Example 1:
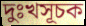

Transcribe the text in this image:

দুঃখসূচক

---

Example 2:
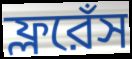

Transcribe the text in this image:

ফ্লরেঁস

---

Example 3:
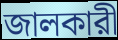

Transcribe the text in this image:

জালকারী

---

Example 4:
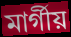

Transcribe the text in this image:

মার্গীয়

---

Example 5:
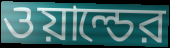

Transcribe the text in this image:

ওয়াল্ডের